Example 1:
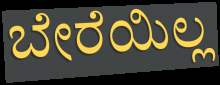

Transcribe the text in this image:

ಬೇರೆಯಿಲ್ಲ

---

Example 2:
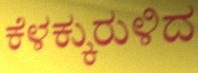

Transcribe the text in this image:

ಕೆಳಕ್ಕುರುಳಿದ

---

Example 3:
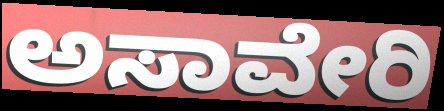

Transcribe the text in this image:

ಅಸಾವೇರಿ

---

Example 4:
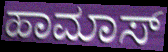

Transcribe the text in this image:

ಹಾಮಾಸ್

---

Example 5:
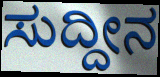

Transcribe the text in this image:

ಸುದ್ದೀನ